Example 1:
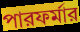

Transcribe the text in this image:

পারফর্মার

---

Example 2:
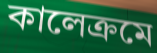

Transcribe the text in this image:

কালেক্রমে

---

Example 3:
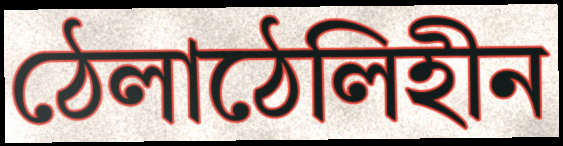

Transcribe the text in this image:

ঠেলাঠেলিহীন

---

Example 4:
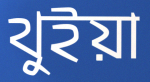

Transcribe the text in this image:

থুইয়া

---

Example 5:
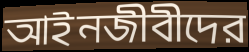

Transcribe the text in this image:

আইনজীবীদের